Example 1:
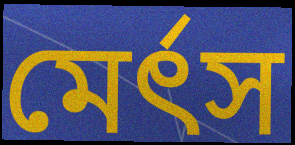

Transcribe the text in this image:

মের্ৎস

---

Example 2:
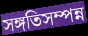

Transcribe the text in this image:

সঙ্গতিসম্পন্ন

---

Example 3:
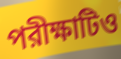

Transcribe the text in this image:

পরীক্ষাটিও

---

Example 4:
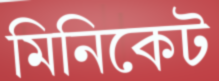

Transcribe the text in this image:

মিনিকেট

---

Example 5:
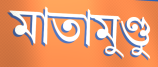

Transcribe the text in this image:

মাতামুণ্ডু